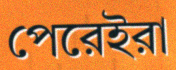
পেরেইরা